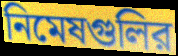
নিমেষগুলির